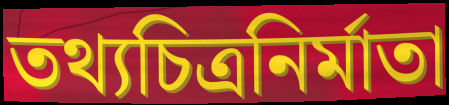
তথ্যচিত্রনির্মাতা